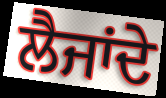
ਲੈਜਾਂਦੇ